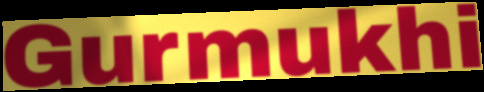
Gurmukhi